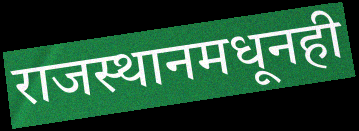
राजस्थानमधूनही